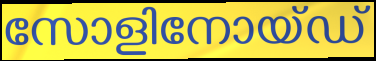
സോളിനോയ്ഡ്